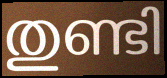
തുണ്ടി